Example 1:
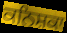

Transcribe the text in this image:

ਕਨਿਸ਼ਕਾ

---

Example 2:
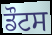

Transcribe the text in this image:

ਡੌਟਸ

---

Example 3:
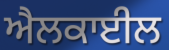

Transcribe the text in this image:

ਐਲਕਾਈਲ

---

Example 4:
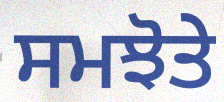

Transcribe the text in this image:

ਸਮਝੋਤੇ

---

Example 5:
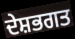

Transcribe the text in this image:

ਦੇਸ਼ਭਗਤ